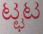
ಟ್ಟಟ